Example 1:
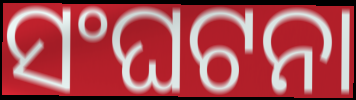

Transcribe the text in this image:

ସଂଘଟନା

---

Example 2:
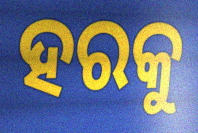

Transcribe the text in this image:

ହରକୁ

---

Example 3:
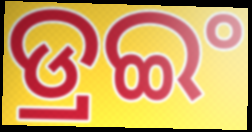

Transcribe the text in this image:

ଡ୍ରଇଂ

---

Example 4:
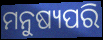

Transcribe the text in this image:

ମନୁଷ୍ୟପରି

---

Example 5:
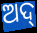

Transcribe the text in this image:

ଅଦ୍